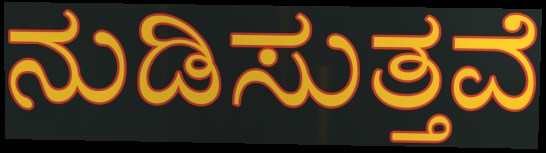
ನುಡಿಸುತ್ತವೆ